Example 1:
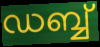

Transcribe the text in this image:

ഡബ്ബ്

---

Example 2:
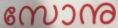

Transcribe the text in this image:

സോനു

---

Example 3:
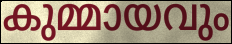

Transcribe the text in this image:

കുമ്മായവും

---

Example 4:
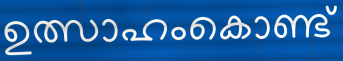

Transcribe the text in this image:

ഉത്സാഹംകൊണ്ട്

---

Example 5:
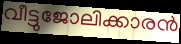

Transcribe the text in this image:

വീട്ടുജോലിക്കാരൻ